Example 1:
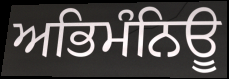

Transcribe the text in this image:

ਅਭਿਮੰਨਿਊ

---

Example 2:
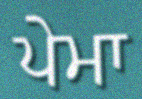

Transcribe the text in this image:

ਪੇਮਾ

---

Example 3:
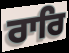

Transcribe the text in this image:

ਰਾਰਿ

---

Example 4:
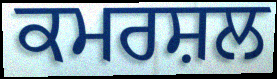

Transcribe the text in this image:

ਕਮਰਸ਼ਲ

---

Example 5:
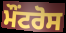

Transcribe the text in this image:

ਮੌਂਟਰੋਸ